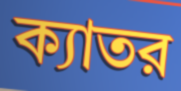
ক্যাতর